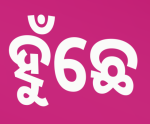
ହୁଁଛେ